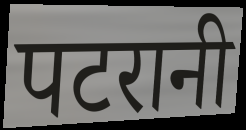
पटरानी